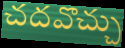
చదవొచ్చు